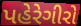
પહેરેગીરો